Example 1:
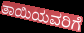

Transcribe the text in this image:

ತಾಯಿಯವರಿಗೆ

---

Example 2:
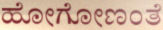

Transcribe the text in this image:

ಹೋಗೋಣಂತೆ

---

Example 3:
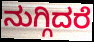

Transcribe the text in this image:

ನುಗ್ಗಿದರೆ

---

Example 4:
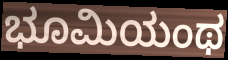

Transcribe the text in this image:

ಭೂಮಿಯಂಥ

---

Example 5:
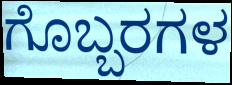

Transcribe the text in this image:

ಗೊಬ್ಬರಗಳ